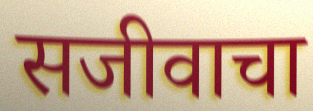
सजीवाचा